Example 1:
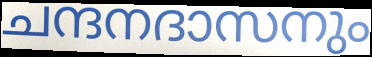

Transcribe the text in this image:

ചന്ദനദാസനും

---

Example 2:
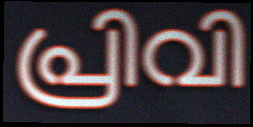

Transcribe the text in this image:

പ്രിവി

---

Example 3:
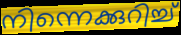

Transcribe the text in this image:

നിന്നെക്കുറിച്ച്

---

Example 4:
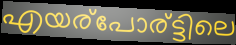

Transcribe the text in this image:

എയര്പോര്ട്ടിലെ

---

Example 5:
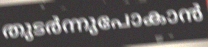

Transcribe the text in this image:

തുടർന്നുപോകാൻ